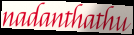
nadanthathu